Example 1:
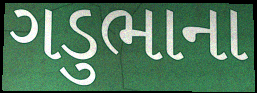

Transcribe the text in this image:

ગડુભાના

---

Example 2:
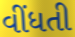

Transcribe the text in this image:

વીંધતી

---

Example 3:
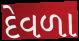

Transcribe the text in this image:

દેવળા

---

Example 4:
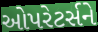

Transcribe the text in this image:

ઓપરેટર્સને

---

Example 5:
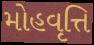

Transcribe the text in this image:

મોહવૃત્તિ